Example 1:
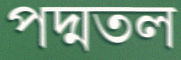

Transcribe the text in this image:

পদ্মতল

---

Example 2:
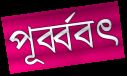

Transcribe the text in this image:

পূর্ব্ববৎ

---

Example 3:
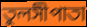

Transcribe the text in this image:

তুলসীপাতা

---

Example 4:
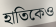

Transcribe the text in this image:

হাতিকেও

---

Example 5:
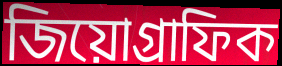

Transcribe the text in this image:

জিয়োগ্রাফিক